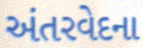
અંતરવેદના